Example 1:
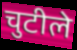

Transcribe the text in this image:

चुटीले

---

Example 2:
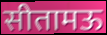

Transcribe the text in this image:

सीतामऊ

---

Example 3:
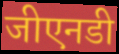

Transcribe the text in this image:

जीएनडी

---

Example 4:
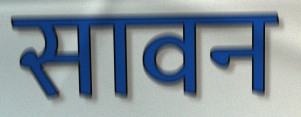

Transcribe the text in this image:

सावन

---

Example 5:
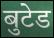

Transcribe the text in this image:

बुटेड